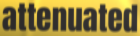
attenuated